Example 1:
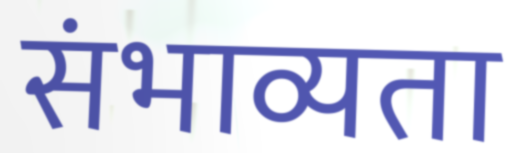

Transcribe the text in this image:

संभाव्यता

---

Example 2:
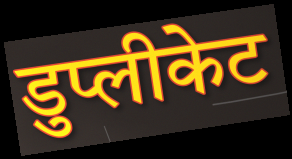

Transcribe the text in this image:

डुप्‍लीकेट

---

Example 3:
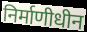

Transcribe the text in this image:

निर्माणीधीन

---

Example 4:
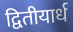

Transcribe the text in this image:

द्वितीयार्ध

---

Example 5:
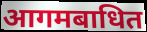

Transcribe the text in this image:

आगमबाधित